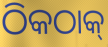
ଠିକଠାକ୍